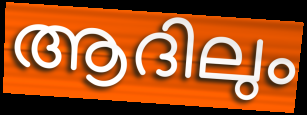
ആദിലും